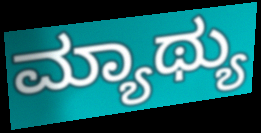
ಮ್ಯಾಥ್ಯು